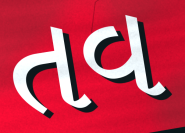
તવ